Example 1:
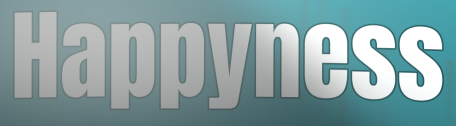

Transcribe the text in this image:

Happyness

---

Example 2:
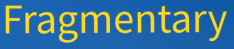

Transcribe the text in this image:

Fragmentary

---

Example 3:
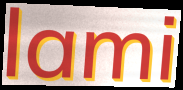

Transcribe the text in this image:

lami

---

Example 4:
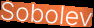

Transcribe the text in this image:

Sobolev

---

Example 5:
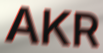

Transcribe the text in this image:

AKR